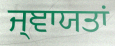
ਜ੍ਞਾਯਤਾਂ